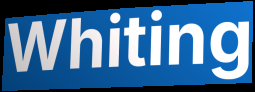
Whiting